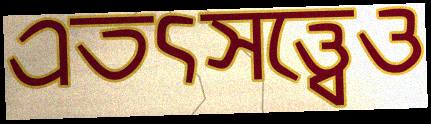
এতৎসত্ত্বেও